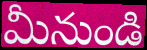
మీనుండి